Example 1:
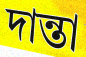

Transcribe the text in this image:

দান্তা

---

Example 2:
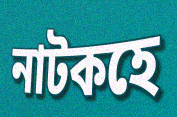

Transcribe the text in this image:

নাটকহে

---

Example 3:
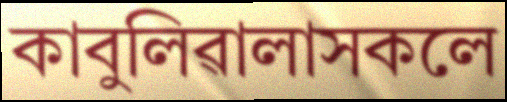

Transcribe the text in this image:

কাবুলিৱালাসকলে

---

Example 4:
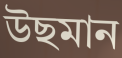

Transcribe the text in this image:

উছমান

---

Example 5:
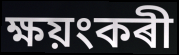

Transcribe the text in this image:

ক্ষয়ংকৰী